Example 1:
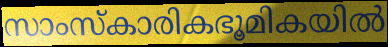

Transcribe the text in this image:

സാംസ്കാരികഭൂമികയിൽ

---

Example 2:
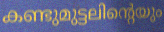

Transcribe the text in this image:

കണ്ടുമുട്ടലിന്റെയും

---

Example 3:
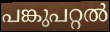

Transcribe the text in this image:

പങ്കുപറ്റൽ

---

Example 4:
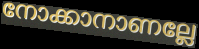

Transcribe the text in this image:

നോക്കാനാണല്ലേ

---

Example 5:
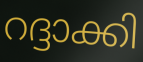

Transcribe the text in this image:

റദ്ദാക്കി